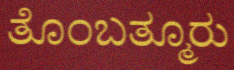
ತೊಂಬತ್ಮೂರು